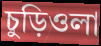
চুড়িওলা